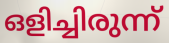
ഒളിച്ചിരുന്ന്